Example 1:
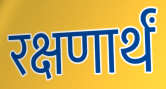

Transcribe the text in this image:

रक्षणार्थं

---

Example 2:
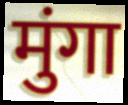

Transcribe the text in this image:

मुंगा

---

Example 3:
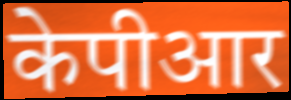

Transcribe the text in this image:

केपीआर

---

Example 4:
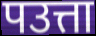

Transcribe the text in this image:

पउत्ता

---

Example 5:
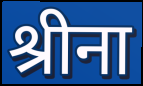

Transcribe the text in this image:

श्रीना